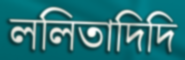
ললিতাদিদি